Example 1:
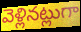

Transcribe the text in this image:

వెళ్లినట్లుగా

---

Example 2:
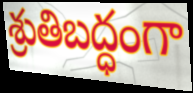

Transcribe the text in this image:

శ్రుతిబద్ధంగా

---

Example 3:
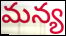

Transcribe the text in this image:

మన్య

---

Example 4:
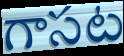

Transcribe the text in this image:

గాసట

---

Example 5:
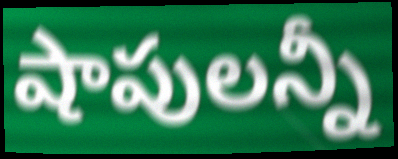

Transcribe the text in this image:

షాపులన్నీ